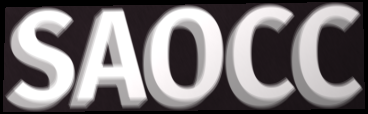
SAOCC